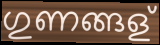
ഗുണങ്ങള്